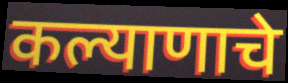
कल्याणाचे